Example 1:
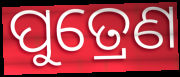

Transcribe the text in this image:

ପୁତ୍ରେଣ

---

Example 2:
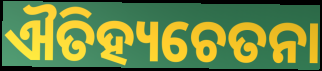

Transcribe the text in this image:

ଐତିହ୍ୟଚେତନା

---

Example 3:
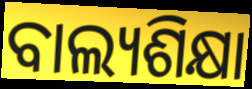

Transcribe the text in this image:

ବାଲ୍ୟଶିକ୍ଷା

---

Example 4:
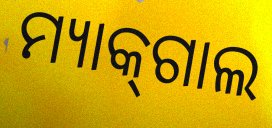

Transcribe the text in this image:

ମ୍ୟାକ୍‌ଗାଲ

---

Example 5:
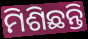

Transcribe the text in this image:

ମିଶିଛନ୍ତି